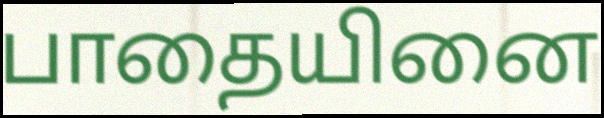
பாதையினை